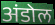
अंडोल